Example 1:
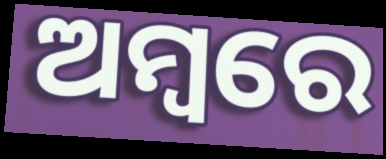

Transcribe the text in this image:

ଅମ୍ବରେ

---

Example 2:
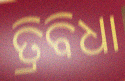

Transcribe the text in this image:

ତ୍ରିବିଧା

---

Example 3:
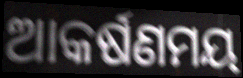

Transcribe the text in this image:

ଆକର୍ଷଣମୟ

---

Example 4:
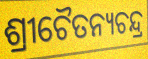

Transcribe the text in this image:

ଶ୍ରୀଚୈତନ୍ୟଚନ୍ଦ୍ର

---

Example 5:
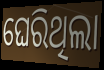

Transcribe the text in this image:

ଘେରିଥିଲା